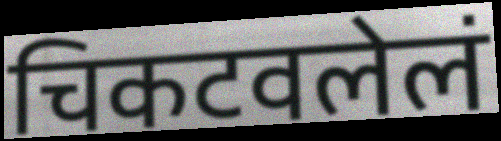
चिकटवलेलं